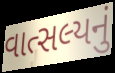
વાત્સલ્યનું